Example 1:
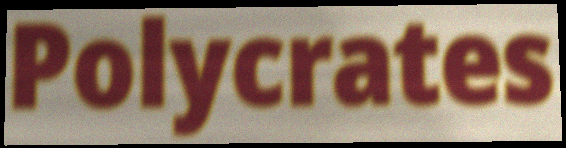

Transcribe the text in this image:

Polycrates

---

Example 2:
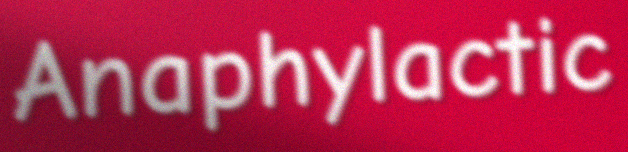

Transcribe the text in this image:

Anaphylactic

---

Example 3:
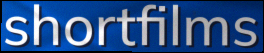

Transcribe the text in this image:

shortfilms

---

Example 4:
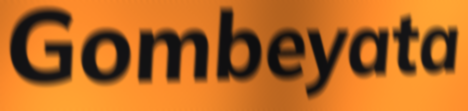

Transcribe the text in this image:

Gombeyata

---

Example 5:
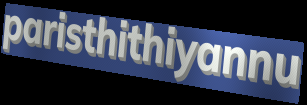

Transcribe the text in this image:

paristhithiyannu